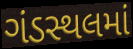
ગંડસ્થલમાં